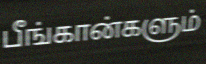
பீங்கான்களும்